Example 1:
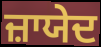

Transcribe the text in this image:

ਜ਼ਾਯੇਦ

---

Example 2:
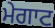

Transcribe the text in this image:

ਮੇਗਾਟ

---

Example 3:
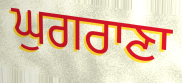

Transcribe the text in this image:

ਘੁਗਰਾਣਾ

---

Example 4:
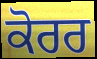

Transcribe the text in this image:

ਕੋਰਰ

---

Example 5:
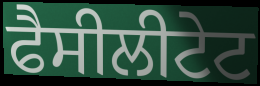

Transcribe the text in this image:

ਫੈਸੀਲੀਟੇਟ